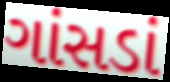
ગાંસડાં